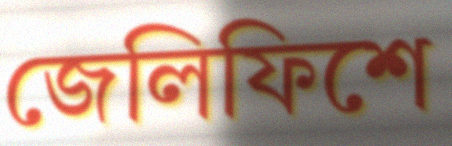
জেলিফিশে